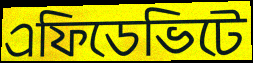
এফিডেভিটে